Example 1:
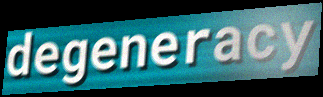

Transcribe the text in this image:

degeneracy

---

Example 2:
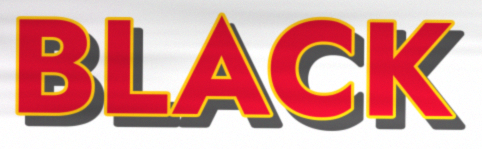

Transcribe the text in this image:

BLACK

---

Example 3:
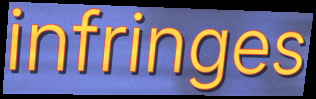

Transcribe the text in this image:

infringes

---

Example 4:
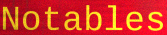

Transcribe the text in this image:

Notables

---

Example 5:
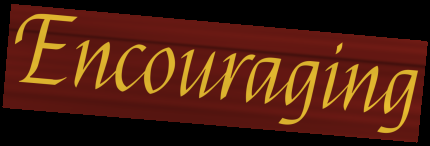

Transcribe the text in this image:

Encouraging